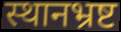
स्थानभ्रष्ट